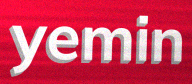
yemin